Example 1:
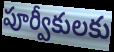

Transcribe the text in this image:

పూర్వీకులకు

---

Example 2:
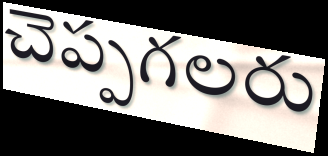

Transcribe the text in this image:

చెప్పగలరు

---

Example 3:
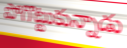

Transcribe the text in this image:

పోగొట్టుకున్నాడు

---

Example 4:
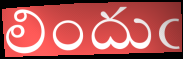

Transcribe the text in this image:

లిందుఁ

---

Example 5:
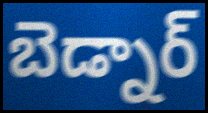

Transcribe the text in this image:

బెడ్నార్